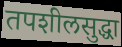
तपशीलसुद्धा